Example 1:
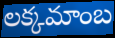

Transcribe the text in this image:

లక్కమాంబ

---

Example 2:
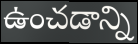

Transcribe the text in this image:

ఉంచడాన్ని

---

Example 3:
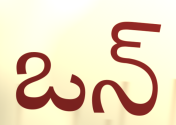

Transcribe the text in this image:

ఒన్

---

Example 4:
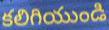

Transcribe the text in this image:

కలిగియుండి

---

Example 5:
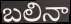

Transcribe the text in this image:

బలినా